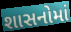
શાસનોમાં